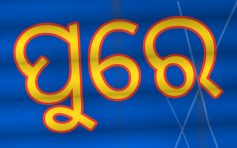
ପୁରେ